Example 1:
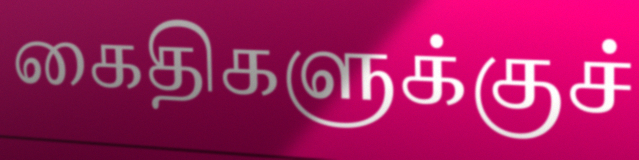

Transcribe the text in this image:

கைதிகளுக்குச்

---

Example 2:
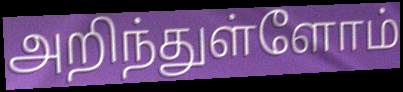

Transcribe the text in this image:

அறிந்துள்ளோம்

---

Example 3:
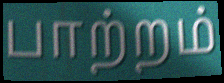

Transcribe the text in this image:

பாற்றம்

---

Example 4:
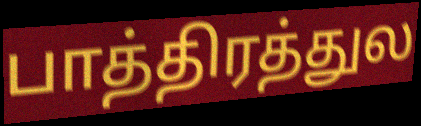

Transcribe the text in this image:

பாத்திரத்துல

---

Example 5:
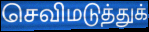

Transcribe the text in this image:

செவிமடுத்துக்